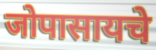
जोपासायचे